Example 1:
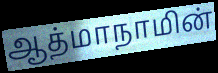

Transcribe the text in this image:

ஆத்மாநாமின்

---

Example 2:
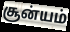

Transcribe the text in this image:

சூன்யம்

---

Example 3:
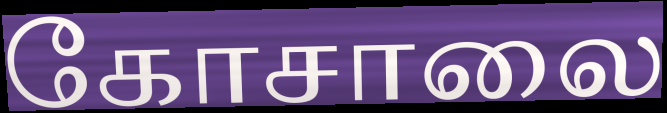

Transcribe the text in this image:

கோசாலை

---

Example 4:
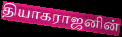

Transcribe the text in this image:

தியாகராஜனின்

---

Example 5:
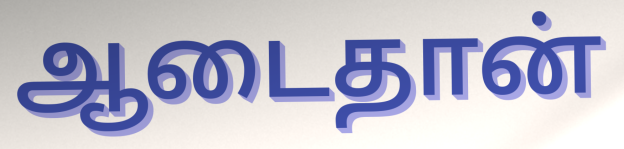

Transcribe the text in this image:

ஆடைதான்